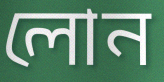
লোন